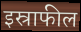
इस्राफील